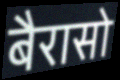
बैरासो